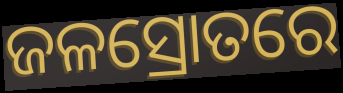
ଜଳସ୍ରୋତରେ